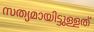
സത്യമായിട്ടുള്ളത്